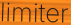
limiter